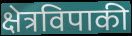
क्षेत्रविपाकी